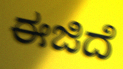
ಈಜಿದೆ